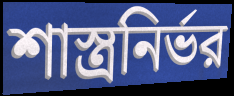
শাস্ত্রনির্ভর